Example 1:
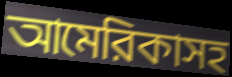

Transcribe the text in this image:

আমেরিকাসহ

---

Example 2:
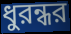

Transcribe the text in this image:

ধুরন্ধর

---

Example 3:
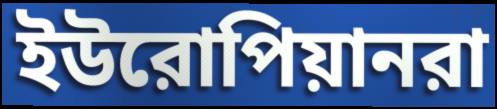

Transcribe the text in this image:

ইউরোপিয়ানরা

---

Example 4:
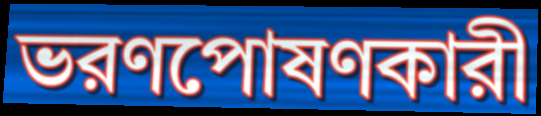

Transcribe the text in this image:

ভরণপোষণকারী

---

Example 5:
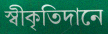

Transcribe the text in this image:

স্বীকৃতিদানে